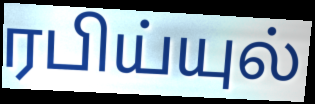
ரபிய்யுல்